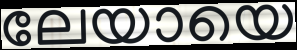
ലേയായെ